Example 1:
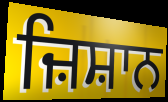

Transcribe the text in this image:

ਜ਼ਿਸ਼ਾਨ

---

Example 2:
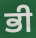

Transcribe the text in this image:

ਭੀ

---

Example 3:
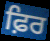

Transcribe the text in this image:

ਫ਼ਿਰ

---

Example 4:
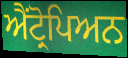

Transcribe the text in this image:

ਐਂਟ੍ਰੋਪਿਅਨ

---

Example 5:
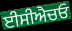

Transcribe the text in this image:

ਈਸੀਐਚਓ